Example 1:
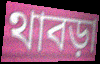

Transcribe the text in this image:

থাবড়া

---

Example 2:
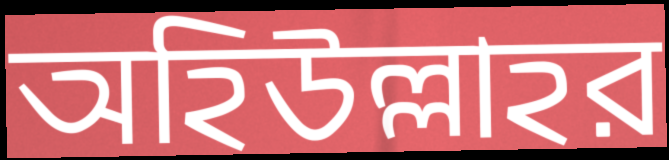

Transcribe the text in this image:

অহিউল্লাহর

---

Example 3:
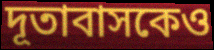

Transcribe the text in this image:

দূতাবাসকেও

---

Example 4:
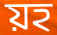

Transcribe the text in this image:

য়হ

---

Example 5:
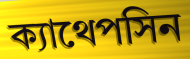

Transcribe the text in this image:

ক্যাথেপসিন